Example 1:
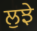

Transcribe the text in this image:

ਲੁਝੇ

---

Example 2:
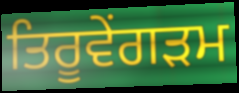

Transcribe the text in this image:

ਤਿਰੂਵੇਂਗੜਮ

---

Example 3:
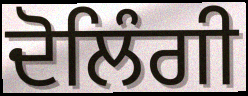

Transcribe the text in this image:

ਦੋਲਿੰਗੀ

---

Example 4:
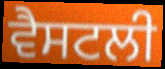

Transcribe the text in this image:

ਵੈਸਟਲੀ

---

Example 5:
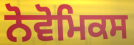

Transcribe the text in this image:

ਨੋਵੋਮਿਕਸ